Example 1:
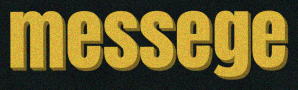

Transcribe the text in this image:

messege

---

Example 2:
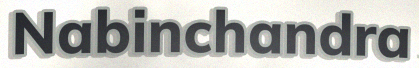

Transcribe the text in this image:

Nabinchandra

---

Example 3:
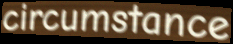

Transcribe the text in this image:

circumstance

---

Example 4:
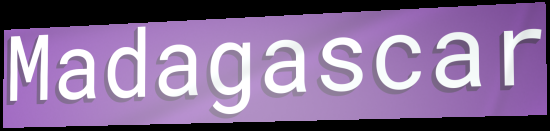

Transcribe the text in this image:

Madagascar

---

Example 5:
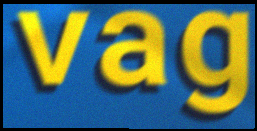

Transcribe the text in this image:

vag